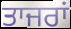
ਤਾਜਰਾਂ